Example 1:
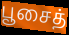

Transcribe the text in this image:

பூசைத்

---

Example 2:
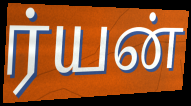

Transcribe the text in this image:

ர்யன்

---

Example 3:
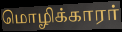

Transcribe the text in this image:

மொழிக்காரர்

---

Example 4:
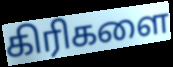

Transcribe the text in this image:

கிரிகளை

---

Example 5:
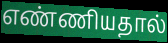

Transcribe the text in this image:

எண்ணியதால்